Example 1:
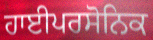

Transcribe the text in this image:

ਹਾਈਪਰਸੋਨਿਕ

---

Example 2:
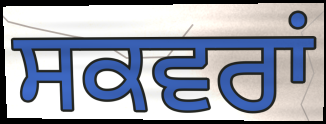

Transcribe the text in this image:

ਸਕਵਰਾਂ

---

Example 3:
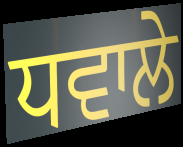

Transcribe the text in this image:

ਧਵਾਲੇ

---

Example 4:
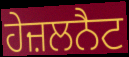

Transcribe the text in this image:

ਹੇਜ਼ਲਨੈਟ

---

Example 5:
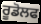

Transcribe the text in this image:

ਰੂਡੋਲਫ